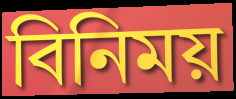
বিনিময়